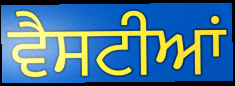
ਵੈਸਟੀਆਂ